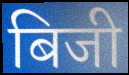
बिजी